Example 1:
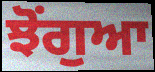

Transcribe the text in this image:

ਝੋਂਗੁਆ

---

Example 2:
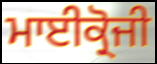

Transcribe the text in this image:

ਮਾਈਕ੍ਰੋਜੀ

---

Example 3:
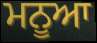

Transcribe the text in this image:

ਮਨੂਆ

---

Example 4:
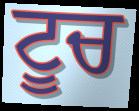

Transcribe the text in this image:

ਟੂਚ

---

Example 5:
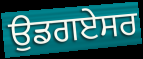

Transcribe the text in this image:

ਉਡਗਏਸਰ